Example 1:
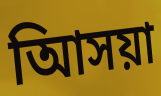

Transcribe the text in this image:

আিসয়া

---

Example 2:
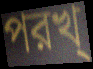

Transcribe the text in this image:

পরখ্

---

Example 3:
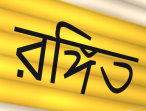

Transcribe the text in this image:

রঙ্গিত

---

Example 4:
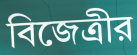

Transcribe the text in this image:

বিজেত্রীর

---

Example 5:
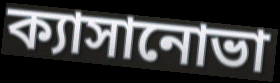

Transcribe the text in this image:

ক্যাসানোভা